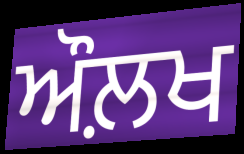
ਔਲ਼ਖ